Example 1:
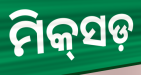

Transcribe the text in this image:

ମିକ୍‌ସଡ଼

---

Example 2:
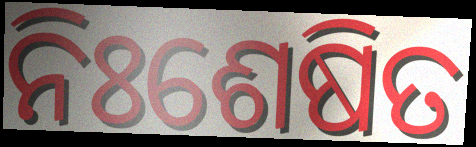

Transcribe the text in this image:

ନିଃଶେଷିତ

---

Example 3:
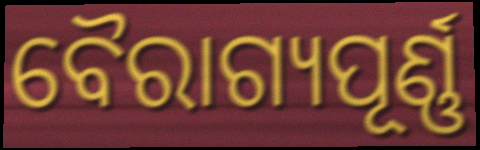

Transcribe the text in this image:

ବୈରାଗ୍ୟପୂର୍ଣ୍ଣ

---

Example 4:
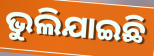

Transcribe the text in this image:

ଭୁଲିଯାଇଛି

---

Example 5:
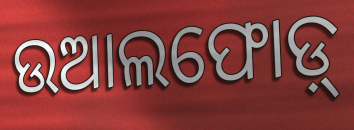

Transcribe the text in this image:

ଉଆଲଫୋଡ଼୍